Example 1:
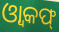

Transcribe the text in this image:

ଓ୍ଵାକଫ୍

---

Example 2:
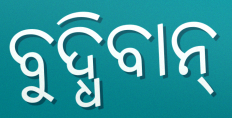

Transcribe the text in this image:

ବୁଦ୍ଧିବାନ୍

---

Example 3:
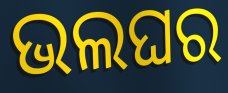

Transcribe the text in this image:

ଭଲଘର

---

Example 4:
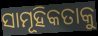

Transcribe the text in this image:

ସାମୂହିକତାକୁ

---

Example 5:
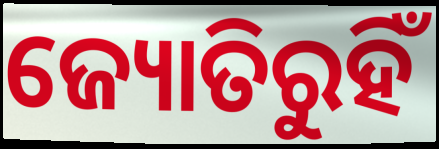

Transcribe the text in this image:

ଜ୍ୟୋତିରୁହିଁ